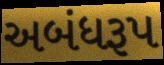
અબંધરૂપ